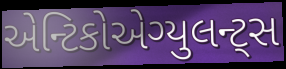
એન્ટિકોએગ્યુલન્ટ્સ